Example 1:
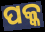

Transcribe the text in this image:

ପକ୍କ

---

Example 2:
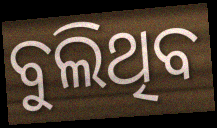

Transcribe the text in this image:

ବୁଲିଥିବ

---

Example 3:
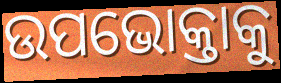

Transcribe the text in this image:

ଉପଭୋକ୍ତାକୁ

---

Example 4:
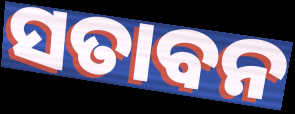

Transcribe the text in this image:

ସତାବନ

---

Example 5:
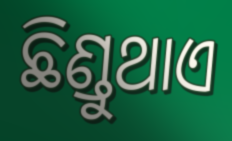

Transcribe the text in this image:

ଛିଣ୍ଡୁଥାଏ